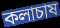
কলাচাষ